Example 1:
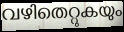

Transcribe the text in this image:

വഴിതെറ്റുകയും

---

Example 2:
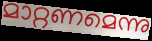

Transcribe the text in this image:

മാറ്റണമെന്നു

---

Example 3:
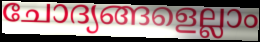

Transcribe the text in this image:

ചോദ്യങ്ങളെല്ലാം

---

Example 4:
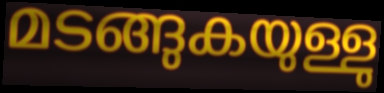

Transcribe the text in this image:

മടങ്ങുകയുള്ളു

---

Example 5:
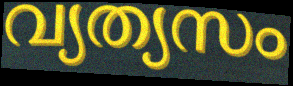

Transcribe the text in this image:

വ്യത്യസം